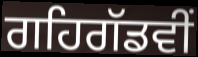
ਗਹਿਗੱਡਵੀਂ